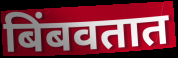
बिंबवतात